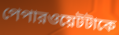
পেপারওয়েটটাকে